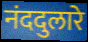
नंददुलारे